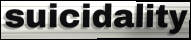
suicidality